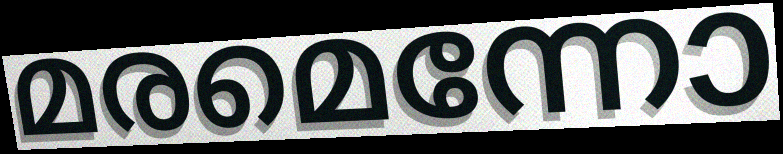
മരമെന്നോ